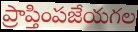
ప్రాప్తింపజేయగల